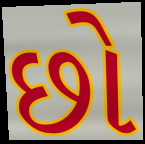
છો